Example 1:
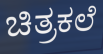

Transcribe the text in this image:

ಚಿತ್ರಕಲೆ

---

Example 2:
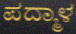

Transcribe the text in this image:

ಪದ್ಮಾಳ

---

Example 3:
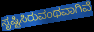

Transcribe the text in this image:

ಸೃಷ್ಟಿಸಿರುವಂಥವಾಗಿವೆ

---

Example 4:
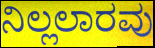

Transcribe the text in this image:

ನಿಲ್ಲಲಾರವು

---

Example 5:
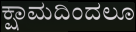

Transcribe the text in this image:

ಕ್ಷಾಮದಿಂದಲೂ